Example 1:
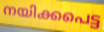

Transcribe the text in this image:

നയിക്കപെട്ട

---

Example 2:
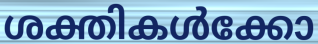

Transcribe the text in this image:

ശക്തികൾക്കോ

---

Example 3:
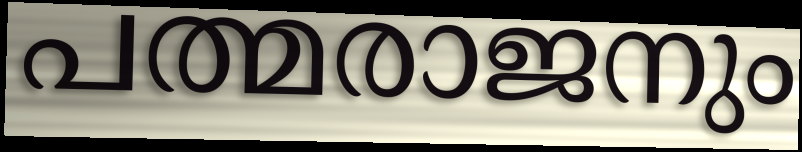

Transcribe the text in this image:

പത്മരാജനും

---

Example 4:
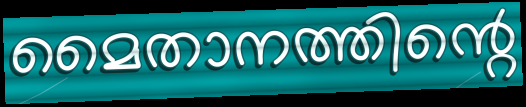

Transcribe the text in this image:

മൈതാനത്തിന്റെ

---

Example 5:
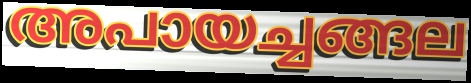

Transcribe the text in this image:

അപായച്ചങ്ങല